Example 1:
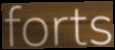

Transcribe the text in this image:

forts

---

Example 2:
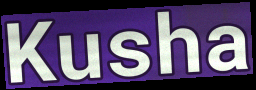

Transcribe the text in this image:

Kusha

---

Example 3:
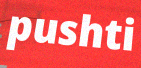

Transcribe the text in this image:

pushti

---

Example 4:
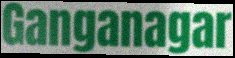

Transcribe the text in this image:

Ganganagar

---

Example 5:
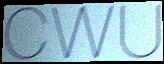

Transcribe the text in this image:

CWU